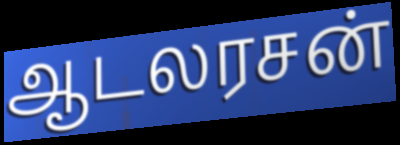
ஆடலரசன்